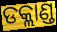
ଡକ୍ଲାଣ୍ଡ